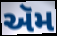
ઍમ